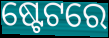
ଷ୍ଟେଟରେ